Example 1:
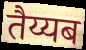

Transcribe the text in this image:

तैय्यब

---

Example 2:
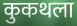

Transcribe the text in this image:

कुकथला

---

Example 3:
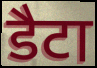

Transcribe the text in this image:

डैटा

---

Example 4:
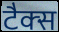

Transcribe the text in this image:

टैक्‍स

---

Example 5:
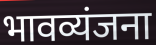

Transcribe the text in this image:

भावव्यंजना